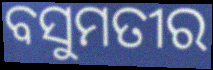
ବସୁମତୀର